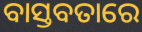
ବାସ୍ତବତାରେ